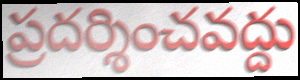
ప్రదర్శించవద్దు